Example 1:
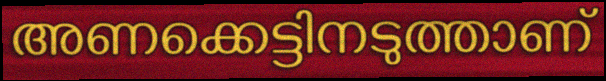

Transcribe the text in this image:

അണക്കെട്ടിനടുത്താണ്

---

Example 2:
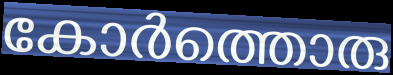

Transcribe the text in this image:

കോർത്തൊരു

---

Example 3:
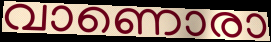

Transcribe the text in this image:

വാണൊരാ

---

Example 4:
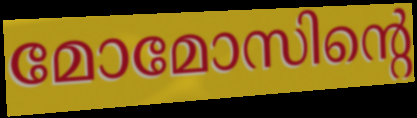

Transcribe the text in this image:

മോമോസിന്റെ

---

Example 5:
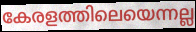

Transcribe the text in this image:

കേരളത്തിലെയെന്നല്ല